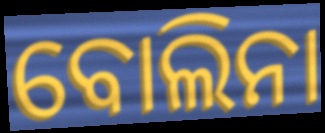
ବୋଲିନା